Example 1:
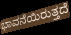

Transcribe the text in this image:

ಭಾವನೆಯಿರುತ್ತದೆ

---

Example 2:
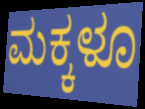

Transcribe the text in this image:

ಮಕ್ಕಳೂ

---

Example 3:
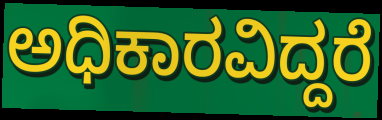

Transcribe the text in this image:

ಅಧಿಕಾರವಿದ್ದರೆ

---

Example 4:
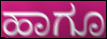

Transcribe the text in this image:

ಹಾಗೂ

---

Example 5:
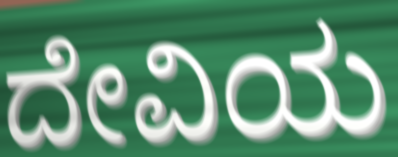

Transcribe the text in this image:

ದೇವಿಯ